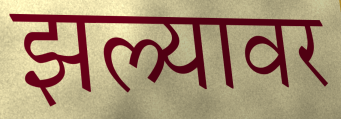
झल्यावर